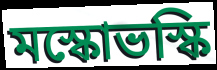
মস্কোভস্কি